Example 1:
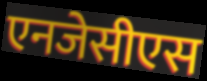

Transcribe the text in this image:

एनजेसीएस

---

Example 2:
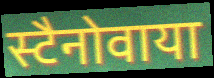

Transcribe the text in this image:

स्टैनोवाया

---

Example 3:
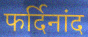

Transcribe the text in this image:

फर्दिनांद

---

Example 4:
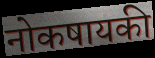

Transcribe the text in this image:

नोकषायकी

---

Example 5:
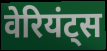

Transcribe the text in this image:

वेरियंट्स